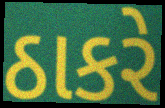
ઠાકરે